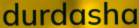
durdasha